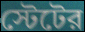
স্টেটের